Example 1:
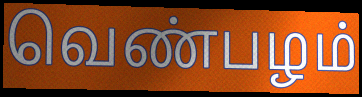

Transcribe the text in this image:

வெண்பழம்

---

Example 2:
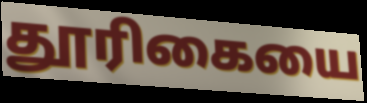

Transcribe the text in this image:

தூரிகையை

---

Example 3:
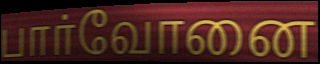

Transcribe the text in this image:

பார்வோனை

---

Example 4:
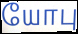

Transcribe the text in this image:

யோபு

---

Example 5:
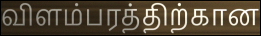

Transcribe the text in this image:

விளம்பரத்திற்கான